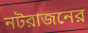
নটরাজনের